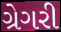
ગ્રેગરી